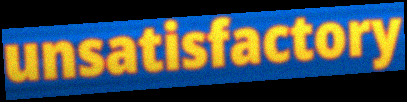
unsatisfactory